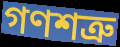
গণশত্রু